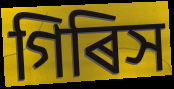
গিৰিস